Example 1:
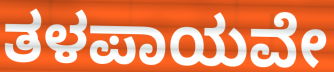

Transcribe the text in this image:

ತಳಪಾಯವೇ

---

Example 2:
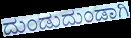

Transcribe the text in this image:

ದುಂಡುದುಂಡಾಗಿ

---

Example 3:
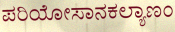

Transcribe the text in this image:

ಪರಿಯೋಸಾನಕಲ್ಯಾಣಂ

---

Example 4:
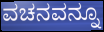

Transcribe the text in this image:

ವಚನವನ್ನೂ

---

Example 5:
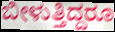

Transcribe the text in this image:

ಬೀಳುತ್ತಿದ್ದರೂ